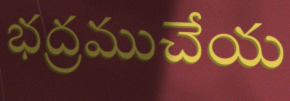
భద్రముచేయ